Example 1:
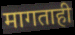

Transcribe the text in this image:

मागताही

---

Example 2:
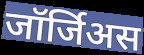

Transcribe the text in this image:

जॉर्जिअस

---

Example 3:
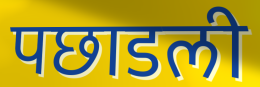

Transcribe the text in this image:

पछाडली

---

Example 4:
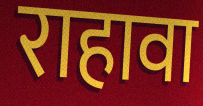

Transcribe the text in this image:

राहावा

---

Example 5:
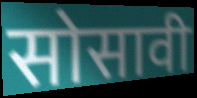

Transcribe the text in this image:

सोसावी